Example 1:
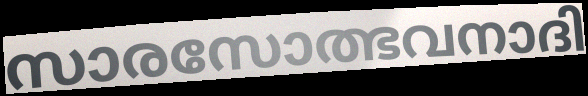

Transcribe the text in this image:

സാരസോത്ഭവനാദി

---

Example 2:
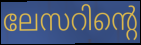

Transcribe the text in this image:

ലേസറിന്റെ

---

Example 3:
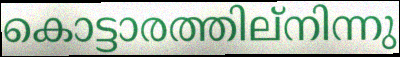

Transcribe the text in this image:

കൊട്ടാരത്തില്നിന്നു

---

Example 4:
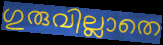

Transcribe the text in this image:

ഗുരുവില്ലാതെ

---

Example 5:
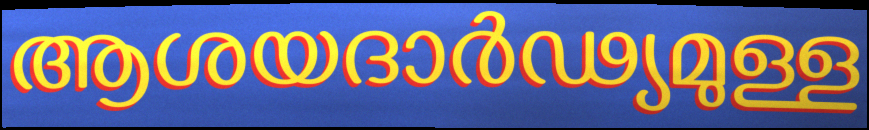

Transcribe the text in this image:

ആശയദാർഢ്യമുള്ള